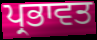
ਪ੍ਰਭਾਵਤ